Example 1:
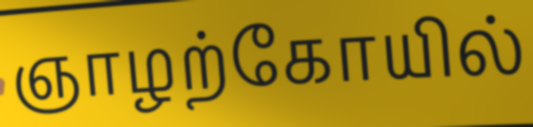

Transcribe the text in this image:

ஞாழற்கோயில்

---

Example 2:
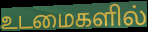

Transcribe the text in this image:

உடமைகளில்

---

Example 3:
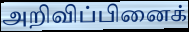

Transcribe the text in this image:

அறிவிப்பினைக்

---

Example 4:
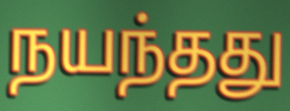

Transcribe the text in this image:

நயந்தது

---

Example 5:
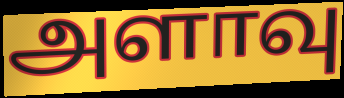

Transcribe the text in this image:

அளாவு